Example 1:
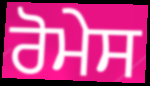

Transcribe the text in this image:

ਰੋਮੇਸ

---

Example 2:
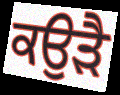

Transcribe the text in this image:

ਕਉੜੈ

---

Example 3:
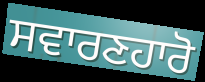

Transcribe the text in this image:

ਸਵਾਰਣਹਾਰੋ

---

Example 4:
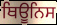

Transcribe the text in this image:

ਥਿਊਨਿਸ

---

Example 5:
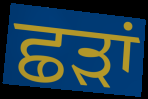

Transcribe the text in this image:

ਛੜਾਂ